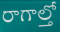
రాగాల్తో